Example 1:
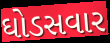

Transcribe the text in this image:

ઘોડસવાર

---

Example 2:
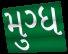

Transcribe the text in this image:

મુગ્ધ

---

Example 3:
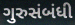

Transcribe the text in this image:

ગુરુસંબંધી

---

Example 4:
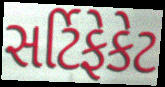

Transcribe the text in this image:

સર્ટિફેકેટ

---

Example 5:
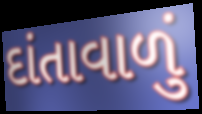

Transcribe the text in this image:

દાંતાવાળું